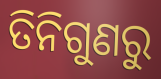
ତିନିଗୁଣରୁ